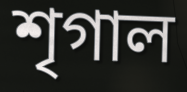
শৃগাল